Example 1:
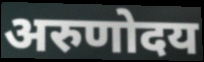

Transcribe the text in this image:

अरुणोदय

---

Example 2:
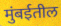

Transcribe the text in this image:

मुंबईतील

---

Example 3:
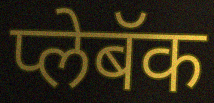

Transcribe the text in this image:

प्लेबॅक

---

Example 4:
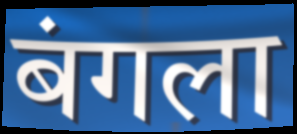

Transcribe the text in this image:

बंगला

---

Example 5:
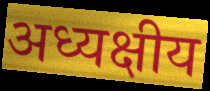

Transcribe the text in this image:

अध्यक्षीय